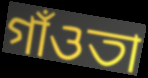
গাঁওতা